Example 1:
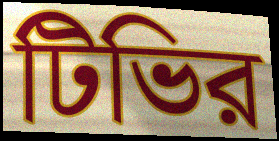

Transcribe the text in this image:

টিভির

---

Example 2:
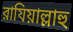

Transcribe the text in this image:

রাযিয়াল্লাহু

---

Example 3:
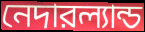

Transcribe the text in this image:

নেদারল্যান্ড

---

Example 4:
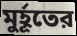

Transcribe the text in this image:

মুর্হূতের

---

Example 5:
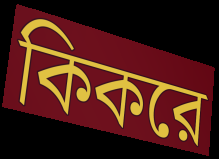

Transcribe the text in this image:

কিকরে